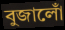
বুজালোঁ